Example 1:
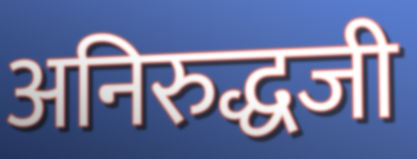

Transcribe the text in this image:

अनिरुद्धजी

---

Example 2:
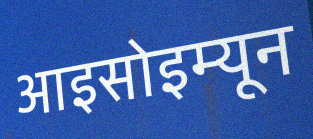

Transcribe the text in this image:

आइसोइम्यून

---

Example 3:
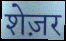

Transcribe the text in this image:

शेज़र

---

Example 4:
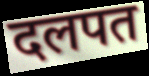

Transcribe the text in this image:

दलपत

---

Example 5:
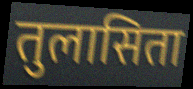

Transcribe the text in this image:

तुलासिता